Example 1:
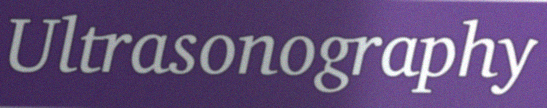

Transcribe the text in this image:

Ultrasonography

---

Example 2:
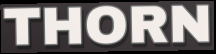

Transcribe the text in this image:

THORN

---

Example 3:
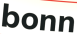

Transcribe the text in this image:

bonn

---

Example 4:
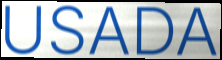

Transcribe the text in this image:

USADA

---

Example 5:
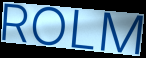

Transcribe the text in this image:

ROLM